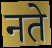
नते